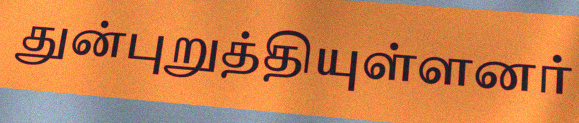
துன்புறுத்தியுள்ளனர்